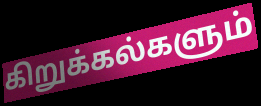
கிறுக்கல்களும்